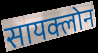
सायक्लोन